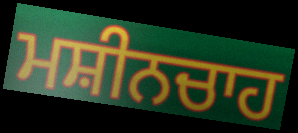
ਮਸ਼ੀਨਚਾਹ